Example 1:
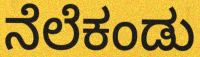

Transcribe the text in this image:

ನೆಲೆಕಂಡು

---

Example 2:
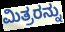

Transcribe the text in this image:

ಮಿತ್ರರನ್ನು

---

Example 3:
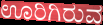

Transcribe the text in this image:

ಊರಿಗಿರುವ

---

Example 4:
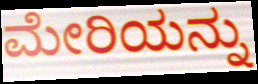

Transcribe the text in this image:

ಮೇರಿಯನ್ನು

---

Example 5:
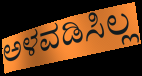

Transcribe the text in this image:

ಅಳವಡಿಸಿಲ್ಲ